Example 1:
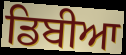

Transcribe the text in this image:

ਡਿਬੀਆ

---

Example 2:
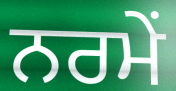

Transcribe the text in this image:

ਨਰਮੇਂ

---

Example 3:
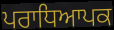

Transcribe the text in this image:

ਪਰਾਧਿਆਪਕ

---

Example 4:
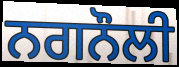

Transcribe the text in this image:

ਨਗਨੌਲੀ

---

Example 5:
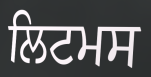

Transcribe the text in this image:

ਲਿਟਮਸ